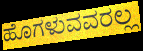
ಹೊಗಳುವವರಲ್ಲ